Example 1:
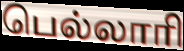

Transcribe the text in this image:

பெல்லாரி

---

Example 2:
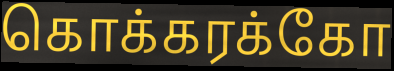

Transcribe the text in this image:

கொக்கரக்கோ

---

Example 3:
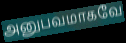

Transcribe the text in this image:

அனுபவமாகவே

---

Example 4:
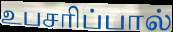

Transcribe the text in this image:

உபசரிப்பால்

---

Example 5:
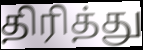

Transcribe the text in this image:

திரித்து